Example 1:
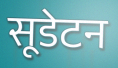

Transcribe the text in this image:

सूडेटन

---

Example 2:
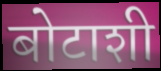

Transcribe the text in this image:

बोटाशी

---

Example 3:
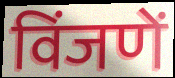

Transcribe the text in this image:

विंजणें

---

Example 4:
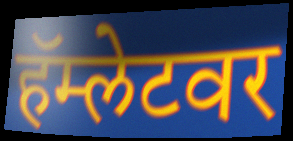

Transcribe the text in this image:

हॅम्लेटवर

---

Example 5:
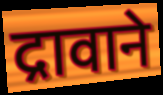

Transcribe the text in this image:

द्रावाने